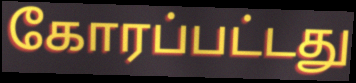
கோரப்பட்டது